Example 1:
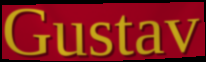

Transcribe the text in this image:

Gustav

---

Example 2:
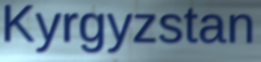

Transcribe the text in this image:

Kyrgyzstan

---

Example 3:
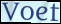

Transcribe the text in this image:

Voet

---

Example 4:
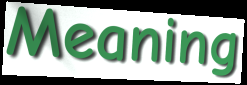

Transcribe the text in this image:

Meaning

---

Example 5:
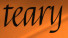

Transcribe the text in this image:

teary